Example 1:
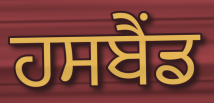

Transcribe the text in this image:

ਹਸਬੈਂਡ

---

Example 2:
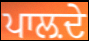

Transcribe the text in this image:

ਪਾਲ਼ਦੇ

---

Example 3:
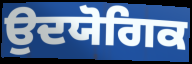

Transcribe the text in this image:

ਉਦਯੋਗਿਕ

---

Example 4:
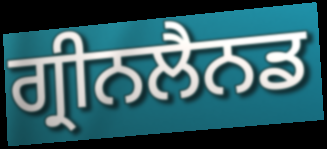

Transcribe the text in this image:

ਗ੍ਰੀਨਲੈਨਡ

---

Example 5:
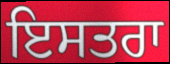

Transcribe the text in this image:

ਇਸਤਰਾ